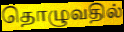
தொழுவதில்